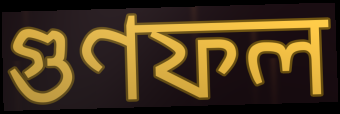
গুণফল